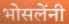
भोसलेंनी